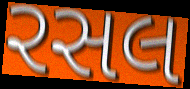
રસલ